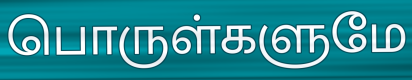
பொருள்களுமே